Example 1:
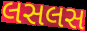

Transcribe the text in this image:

લસલસ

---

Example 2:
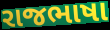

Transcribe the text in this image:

રાજભાષા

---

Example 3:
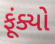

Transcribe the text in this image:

ફૂંક્યો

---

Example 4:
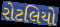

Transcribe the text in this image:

રોટલિયો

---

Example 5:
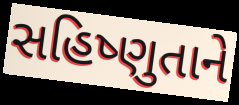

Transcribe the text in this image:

સહિષ્ણુતાને